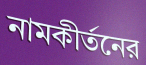
নামকীর্তনের